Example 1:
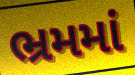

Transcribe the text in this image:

ભ્રમમાં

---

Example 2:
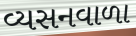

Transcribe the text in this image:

વ્યસનવાળા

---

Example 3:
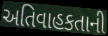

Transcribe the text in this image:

અતિવાહકતાની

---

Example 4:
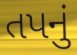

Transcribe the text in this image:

તપનું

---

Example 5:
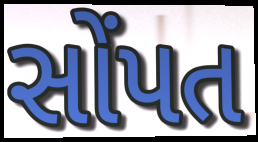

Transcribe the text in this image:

સોંપત